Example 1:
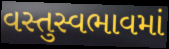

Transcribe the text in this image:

વસ્તુસ્વભાવમાં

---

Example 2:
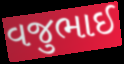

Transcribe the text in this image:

વજુભાઈ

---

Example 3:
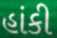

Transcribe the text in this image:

હાંકી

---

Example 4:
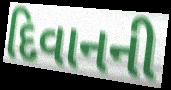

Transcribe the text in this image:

દિવાનની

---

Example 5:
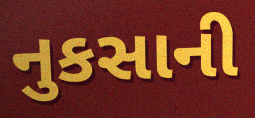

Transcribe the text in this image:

નુકસાની